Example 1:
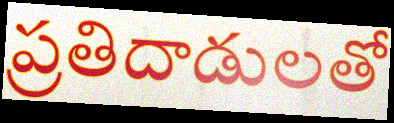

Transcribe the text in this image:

ప్రతిదాడులతో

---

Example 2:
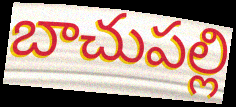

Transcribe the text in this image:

బాచుపల్లి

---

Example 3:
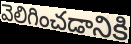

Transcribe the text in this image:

వెలిగించడానికి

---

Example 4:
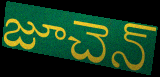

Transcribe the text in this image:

జూచెన్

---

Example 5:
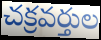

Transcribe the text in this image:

చక్రవర్తుల